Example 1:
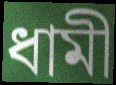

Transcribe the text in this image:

ধামী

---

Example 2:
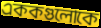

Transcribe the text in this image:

এককগুলোকে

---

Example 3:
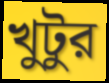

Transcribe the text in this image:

খুটুর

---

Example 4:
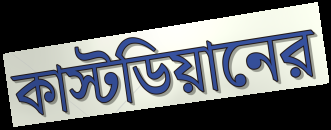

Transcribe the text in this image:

কাস্টডিয়ানের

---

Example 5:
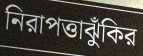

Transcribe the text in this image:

নিরাপত্তাঝুঁকির